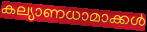
കല്യാണധാമാക്കൾ